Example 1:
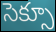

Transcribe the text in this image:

సెక్సూ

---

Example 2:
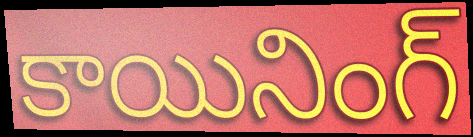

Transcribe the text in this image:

కాయినింగ్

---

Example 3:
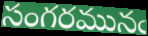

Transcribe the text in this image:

సంగరమునఁ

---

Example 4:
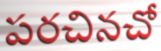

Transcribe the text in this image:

పరచినచో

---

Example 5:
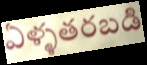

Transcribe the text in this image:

ఏళ్ళతరబడి